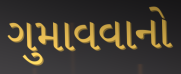
ગુમાવવાનો